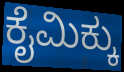
ಕೈಮಿಕ್ಕು